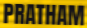
PRATHAM